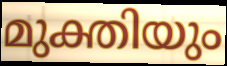
മുക്തിയും